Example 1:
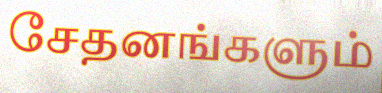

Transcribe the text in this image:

சேதனங்களும்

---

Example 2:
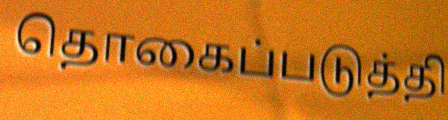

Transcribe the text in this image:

தொகைப்படுத்தி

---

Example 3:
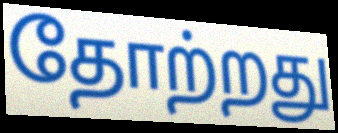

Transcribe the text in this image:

தோற்றது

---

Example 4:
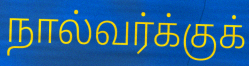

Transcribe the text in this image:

நால்வர்க்குக்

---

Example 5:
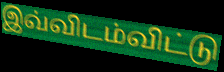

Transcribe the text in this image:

இவ்விடம்விட்டு